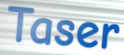
Taser